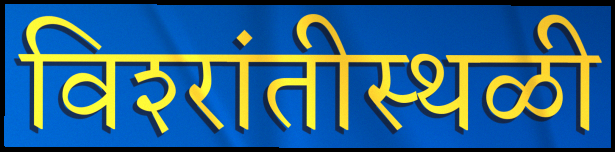
विश्रांतीस्थळी